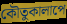
কৌতুকালাপে